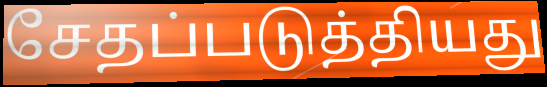
சேதப்படுத்தியது